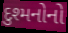
દુશ્મનોનો